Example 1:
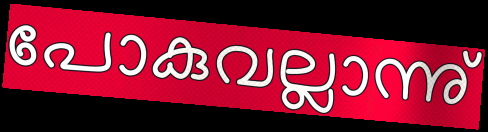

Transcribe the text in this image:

പോകുവല്ലാന്നു്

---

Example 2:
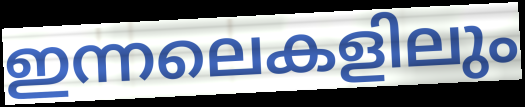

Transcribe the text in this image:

ഇന്നലെകളിലും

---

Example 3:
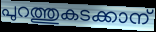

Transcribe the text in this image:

പുറത്തുകടക്കാന്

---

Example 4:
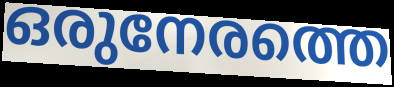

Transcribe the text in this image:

ഒരുനേരത്തെ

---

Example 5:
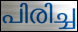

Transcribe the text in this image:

പിരിച്ച